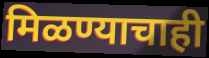
मिळण्याचाही